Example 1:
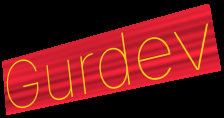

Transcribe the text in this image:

Gurdev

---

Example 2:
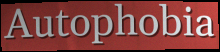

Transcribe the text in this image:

Autophobia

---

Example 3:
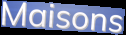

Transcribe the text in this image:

Maisons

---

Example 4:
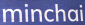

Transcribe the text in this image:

minchai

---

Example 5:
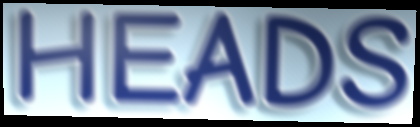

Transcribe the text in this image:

HEADS